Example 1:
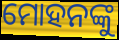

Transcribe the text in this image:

ମୋହନଙ୍କୁ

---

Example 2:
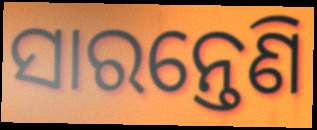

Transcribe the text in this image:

ସାରନ୍ତେଣି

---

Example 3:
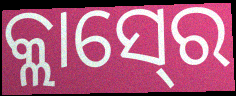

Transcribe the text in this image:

କ୍ଲାସ୍‍ରେ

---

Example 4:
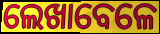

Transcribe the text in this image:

ଲେଖାବେଳେ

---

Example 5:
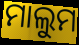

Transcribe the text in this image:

ମାଲୁମ